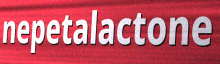
nepetalactone